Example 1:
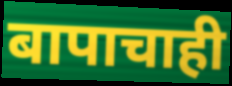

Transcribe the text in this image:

बापाचाही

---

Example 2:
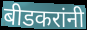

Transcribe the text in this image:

बीडकरांनी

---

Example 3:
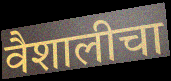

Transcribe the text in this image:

वैशालीचा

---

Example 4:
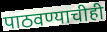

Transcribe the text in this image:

पाठवण्याचीही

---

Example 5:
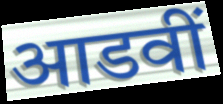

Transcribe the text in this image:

आडवीं